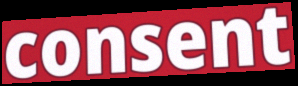
consent